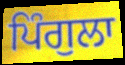
ਪਿੰਗੁਲਾ